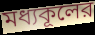
মধ্যকূলের